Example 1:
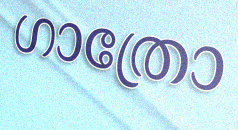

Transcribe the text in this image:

ഗാത്രോ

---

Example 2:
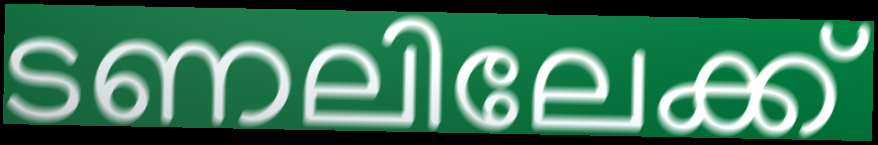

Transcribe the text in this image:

ടണലിലേക്ക്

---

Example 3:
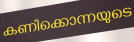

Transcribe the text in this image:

കണിക്കൊന്നയുടെ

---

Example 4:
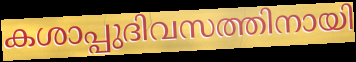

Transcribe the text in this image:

കശാപ്പുദിവസത്തിനായി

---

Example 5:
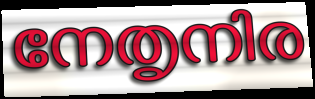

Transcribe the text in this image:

നേതൃനിര